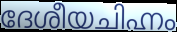
ദേശീയചിഹ്നം